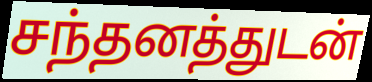
சந்தனத்துடன்